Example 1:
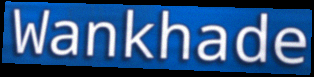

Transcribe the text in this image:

Wankhade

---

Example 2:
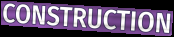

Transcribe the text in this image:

CONSTRUCTION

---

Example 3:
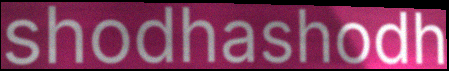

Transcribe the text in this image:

shodhashodh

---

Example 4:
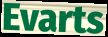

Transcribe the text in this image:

Evarts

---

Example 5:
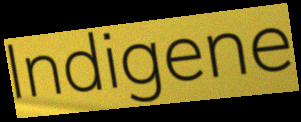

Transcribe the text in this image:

Indigene